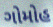
ગોમોહ